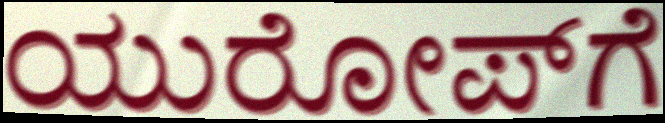
ಯುರೋಪ್‌ಗೆ